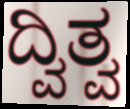
ದ್ವಿತ್ವ